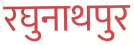
रघुनाथपुर